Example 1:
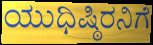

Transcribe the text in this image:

ಯುಧಿಷ್ಠಿರನಿಗೆ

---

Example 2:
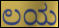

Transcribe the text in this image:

ಲಯ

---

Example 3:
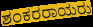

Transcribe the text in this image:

ಶಂಕರರಾಯರು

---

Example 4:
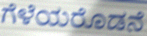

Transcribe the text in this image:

ಗೆಳೆಯರೊಡನೆ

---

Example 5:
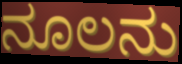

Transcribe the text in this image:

ನೂಲನು